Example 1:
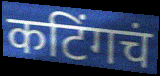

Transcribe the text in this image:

कटिंगचं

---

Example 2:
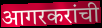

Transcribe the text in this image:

आगरकरांची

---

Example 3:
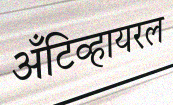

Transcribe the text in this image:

अँटिव्हायरल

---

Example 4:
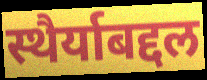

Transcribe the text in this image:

स्थैर्याबद्दल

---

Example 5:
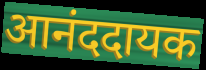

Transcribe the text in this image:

आनंददायक